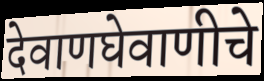
देवाणघेवाणीचे